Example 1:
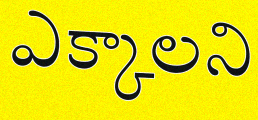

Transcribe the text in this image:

ఎక్కాలని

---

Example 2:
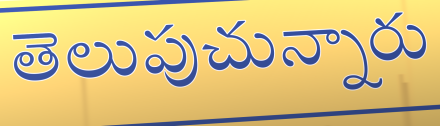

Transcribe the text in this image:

తెలుపుచున్నారు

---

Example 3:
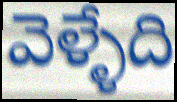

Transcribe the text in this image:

వెళ్ళేది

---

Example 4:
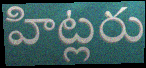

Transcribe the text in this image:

హిట్లరు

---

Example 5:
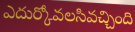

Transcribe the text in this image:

ఎదుర్కోవలసివచ్చింది